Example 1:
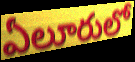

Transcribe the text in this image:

ఏలూరులో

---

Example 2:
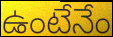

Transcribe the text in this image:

ఉంటేనేం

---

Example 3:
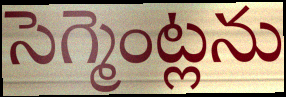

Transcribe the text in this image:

సెగ్మెంట్లను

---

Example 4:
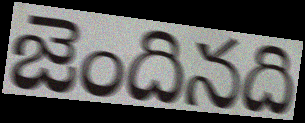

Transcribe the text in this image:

జెందినది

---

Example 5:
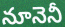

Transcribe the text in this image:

నూనెనీ